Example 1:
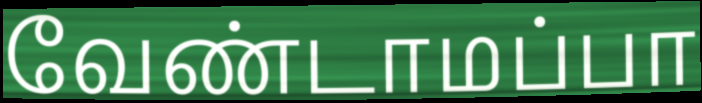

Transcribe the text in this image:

வேண்டாமப்பா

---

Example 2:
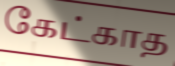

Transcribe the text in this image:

கேட்காத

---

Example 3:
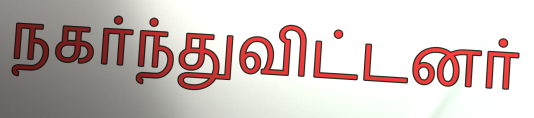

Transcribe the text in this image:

நகர்ந்துவிட்டனர்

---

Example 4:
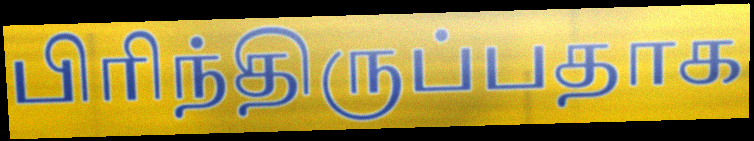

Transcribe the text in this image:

பிரிந்திருப்பதாக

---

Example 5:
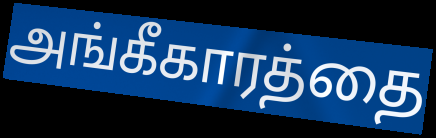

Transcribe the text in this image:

அங்கீகாரத்தை